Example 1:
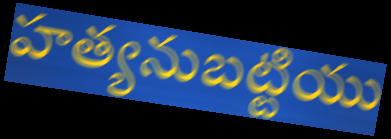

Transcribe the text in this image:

హత్యనుబట్టియు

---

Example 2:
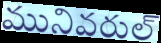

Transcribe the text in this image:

మునివరుల్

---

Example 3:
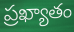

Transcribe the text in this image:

ప్రఖ్యాతం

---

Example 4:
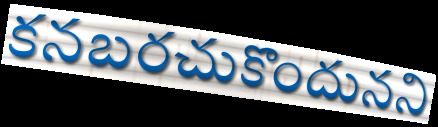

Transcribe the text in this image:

కనబరచుకొందునని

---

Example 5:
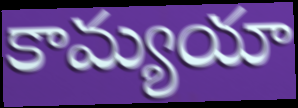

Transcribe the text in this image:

కామ్యయా